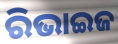
ରିଭାଇଜ